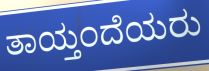
ತಾಯ್ತಂದೆಯರು